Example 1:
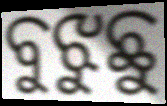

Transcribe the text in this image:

ବୁଝୁଛୁ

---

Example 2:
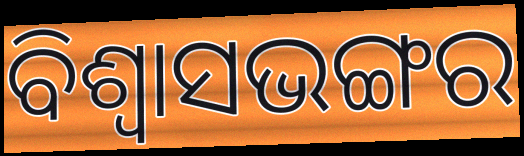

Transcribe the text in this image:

ବିଶ୍ଵାସଭଙ୍ଗର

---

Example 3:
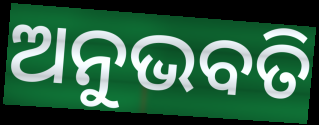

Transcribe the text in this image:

ଅନୁଭବତି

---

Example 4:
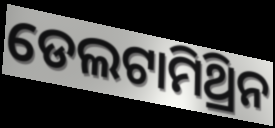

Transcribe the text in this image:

ଡେଲଟାମିଥ୍ରିନ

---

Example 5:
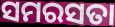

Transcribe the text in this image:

ସମରସତା